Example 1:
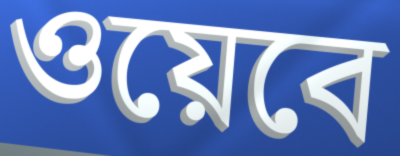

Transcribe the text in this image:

ওয়েবে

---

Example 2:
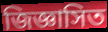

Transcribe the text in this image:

জিজ্ঞাসিত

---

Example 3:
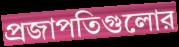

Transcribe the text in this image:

প্রজাপতিগুলোর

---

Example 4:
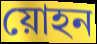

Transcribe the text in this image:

য়োহন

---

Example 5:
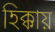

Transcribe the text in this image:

হিক্কায়